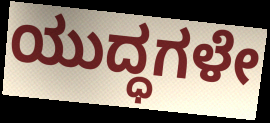
ಯುದ್ಧಗಳೇ